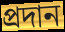
প্ৰদান